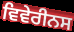
ਵਿਵੇਰੀਨਸ